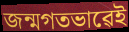
জন্মগতভাৱেই